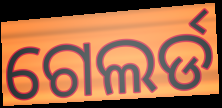
ଗେଲର୍ଡ